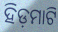
ହିଡ଼ମାଟି